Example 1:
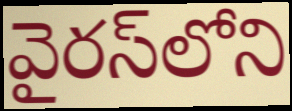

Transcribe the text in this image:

వైరస్‌లోని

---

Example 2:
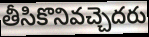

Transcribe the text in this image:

తీసికొనివచ్చెదరు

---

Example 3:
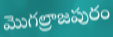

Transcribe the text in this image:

మొగల్రాజపురం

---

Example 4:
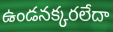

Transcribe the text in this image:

ఉండనక్కరలేదా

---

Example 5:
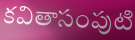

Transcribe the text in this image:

కవితాసంపుటి